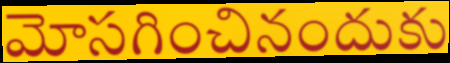
మోసగించినందుకు